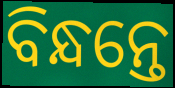
ବିନ୍ଧନ୍ତେ